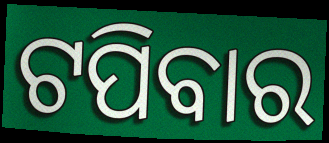
ଟପିବାର